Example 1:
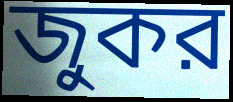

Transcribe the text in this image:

জুকর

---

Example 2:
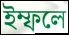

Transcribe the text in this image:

ইম্ফলে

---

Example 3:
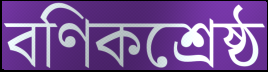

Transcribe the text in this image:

বণিকশ্রেষ্ঠ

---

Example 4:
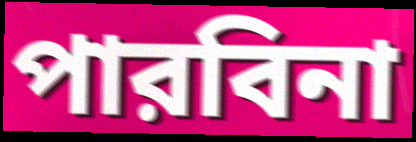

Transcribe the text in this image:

পারবিনা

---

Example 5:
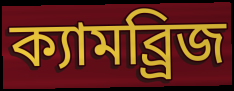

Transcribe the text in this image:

ক্যামব্র্রিজ